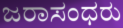
ಜರಾಸಂಧರು